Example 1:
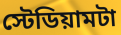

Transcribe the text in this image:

স্টেডিয়ামটা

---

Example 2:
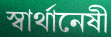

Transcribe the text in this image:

স্বার্থানেষী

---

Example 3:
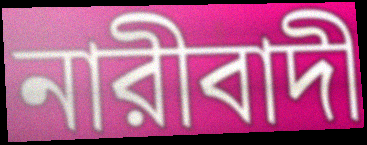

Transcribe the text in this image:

নারীবাদী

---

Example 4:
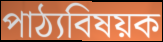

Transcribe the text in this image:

পাঠ্যবিষয়ক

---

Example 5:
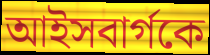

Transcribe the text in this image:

আইসবার্গকে